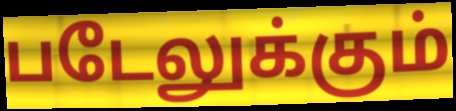
படேலுக்கும்